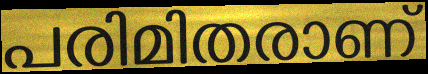
പരിമിതരാണ്